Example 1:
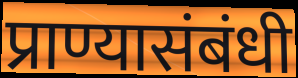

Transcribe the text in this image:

प्राण्यासंबंधी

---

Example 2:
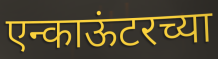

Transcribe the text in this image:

एन्काऊंटरच्या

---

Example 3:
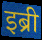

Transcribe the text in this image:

इब्री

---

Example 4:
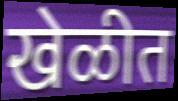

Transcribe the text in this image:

खेळीत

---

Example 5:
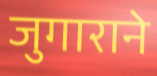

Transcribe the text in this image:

जुगाराने